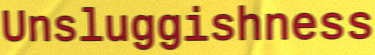
Unsluggishness